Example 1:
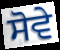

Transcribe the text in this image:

ਸੋਵੇ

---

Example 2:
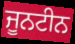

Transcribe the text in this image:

ਜੂਨਟੀਨ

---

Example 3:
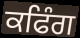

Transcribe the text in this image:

ਕਫਿੰਗ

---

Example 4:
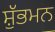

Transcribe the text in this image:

ਸ਼ੁੱਭਮਨ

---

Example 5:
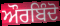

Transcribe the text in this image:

ਔਰਬਿੰਦੋ